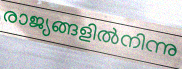
രാജ്യങ്ങളിൽനിന്നു